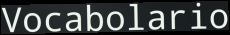
Vocabolario